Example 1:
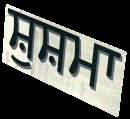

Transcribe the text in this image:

ਸ਼ੁਸ਼ਮਾ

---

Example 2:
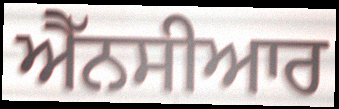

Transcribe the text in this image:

ਐੱਨਸੀਆਰ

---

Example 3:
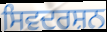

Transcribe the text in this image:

ਸਿਵਦਰਸ਼ਨ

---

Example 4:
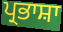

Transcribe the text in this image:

ਪ੍ਰਭਾਸ਼ਾ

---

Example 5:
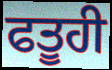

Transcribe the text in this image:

ਫਤੂਹੀ